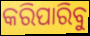
କରିପାରିବୁ